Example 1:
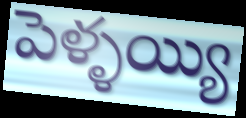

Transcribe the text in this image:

పెళ్ళయ్యి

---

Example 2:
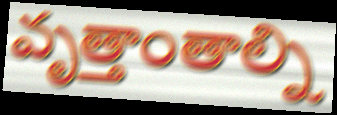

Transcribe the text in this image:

వృత్తాంతాల్ని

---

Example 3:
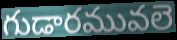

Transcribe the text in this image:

గుడారమువలె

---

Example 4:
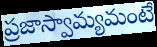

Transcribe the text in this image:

ప్రజాస్వామ్యమంటే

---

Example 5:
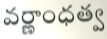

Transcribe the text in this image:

వర్ణాంధత్వ